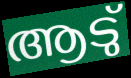
ആടു്